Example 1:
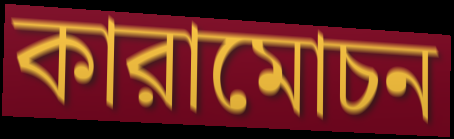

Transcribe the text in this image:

কারামোচন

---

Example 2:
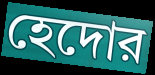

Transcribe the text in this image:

হেদোর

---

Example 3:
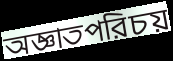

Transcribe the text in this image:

অজ্ঞাতপরিচয়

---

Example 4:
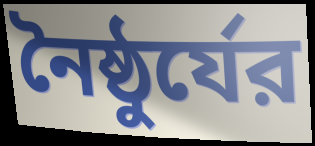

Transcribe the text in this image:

নৈষ্ঠুর্যের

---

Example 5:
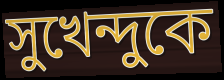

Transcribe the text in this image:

সুখেন্দুকে